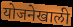
योजनेखाली